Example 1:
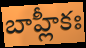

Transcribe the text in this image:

బాహ్లీకః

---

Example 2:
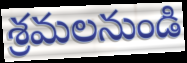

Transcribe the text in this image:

శ్రమలనుండి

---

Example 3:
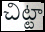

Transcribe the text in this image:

చిట్టా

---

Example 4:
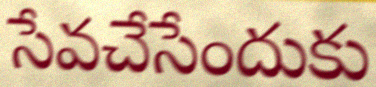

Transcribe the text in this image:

సేవచేసేందుకు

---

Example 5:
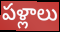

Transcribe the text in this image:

పళ్లాలు